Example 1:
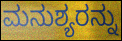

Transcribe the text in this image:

ಮನುಶ್ಯರನ್ನು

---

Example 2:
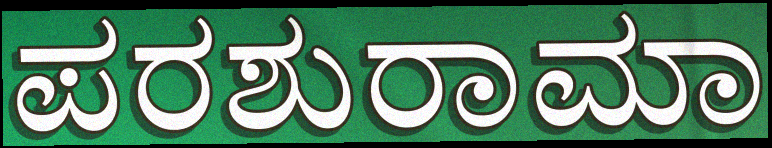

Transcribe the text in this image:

ಪರಶುರಾಮಾ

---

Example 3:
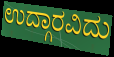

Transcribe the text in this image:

ಉದ್ಗಾರವಿದು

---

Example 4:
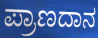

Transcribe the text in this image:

ಪ್ರಾಣದಾನ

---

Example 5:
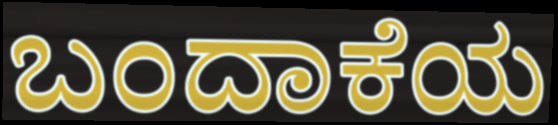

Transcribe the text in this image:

ಬಂದಾಕೆಯ